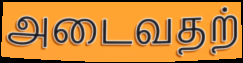
அடைவதற்